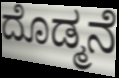
ದೊಡ್ಮನೆ